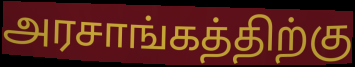
அரசாங்கத்திற்கு